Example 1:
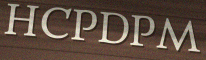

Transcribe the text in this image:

HCPDPM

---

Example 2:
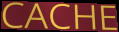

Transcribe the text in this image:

CACHE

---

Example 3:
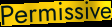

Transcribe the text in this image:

Permissive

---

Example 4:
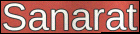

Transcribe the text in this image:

Sanarat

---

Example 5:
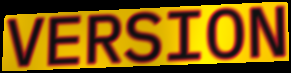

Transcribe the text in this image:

VERSION